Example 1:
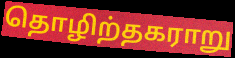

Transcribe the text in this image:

தொழிற்தகராறு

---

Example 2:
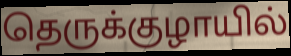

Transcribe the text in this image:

தெருக்குழாயில்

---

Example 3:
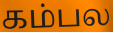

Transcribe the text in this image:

கம்பல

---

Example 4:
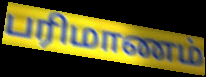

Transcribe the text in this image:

பரிமாணம்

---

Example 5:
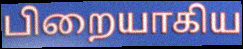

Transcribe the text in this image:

பிறையாகிய